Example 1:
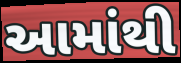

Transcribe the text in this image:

આમાંથી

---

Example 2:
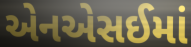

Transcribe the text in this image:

એનએસઈમાં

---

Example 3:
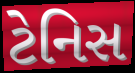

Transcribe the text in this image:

ટેનિસ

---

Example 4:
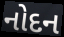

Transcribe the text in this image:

નોદન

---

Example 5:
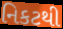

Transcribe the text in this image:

નિકટથી